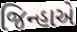
જિન્હાએ